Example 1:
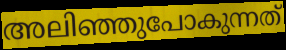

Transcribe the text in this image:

അലിഞ്ഞുപോകുന്നത്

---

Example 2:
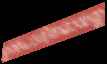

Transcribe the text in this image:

ഉൽപാദിതമായതു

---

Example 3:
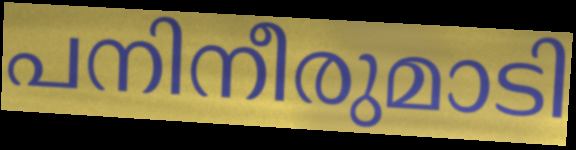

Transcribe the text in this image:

പനിനീരുമാടി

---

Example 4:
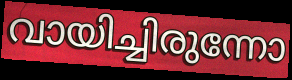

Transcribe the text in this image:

വായിച്ചിരുന്നോ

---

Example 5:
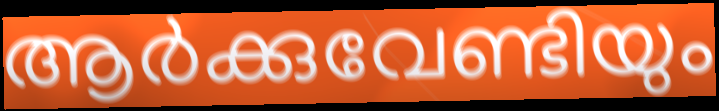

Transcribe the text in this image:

ആർക്കുവേണ്ടിയും